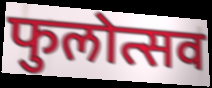
फुलोत्सव